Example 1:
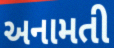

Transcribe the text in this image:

અનામતી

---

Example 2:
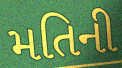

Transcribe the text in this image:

મતિની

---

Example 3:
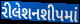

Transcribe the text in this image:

રીલેશનશીપમાં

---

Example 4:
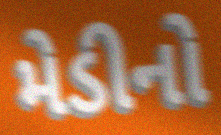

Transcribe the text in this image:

મેડીનો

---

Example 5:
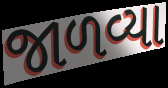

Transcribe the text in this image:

જાળવ્યા